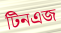
টিনএজ